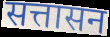
सत्तासन